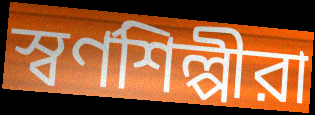
স্বর্ণশিল্পীরা